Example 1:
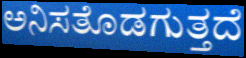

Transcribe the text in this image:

ಅನಿಸತೊಡಗುತ್ತದೆ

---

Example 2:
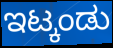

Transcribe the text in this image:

ಇಟ್ಕಂಡು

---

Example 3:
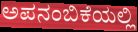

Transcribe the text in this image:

ಅಪನಂಬಿಕೆಯಲ್ಲಿ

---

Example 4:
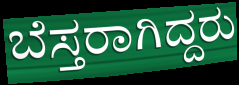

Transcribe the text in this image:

ಬೆಸ್ತರಾಗಿದ್ದರು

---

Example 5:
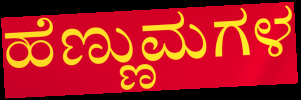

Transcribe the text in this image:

ಹೆಣ್ಣುಮಗಳ